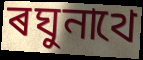
ৰঘুনাথে